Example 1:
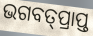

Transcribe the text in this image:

ଭଗବତ୍‌ପ୍ରାପ୍ତ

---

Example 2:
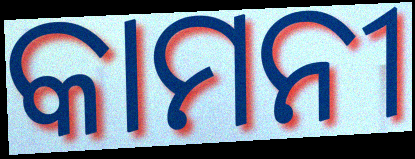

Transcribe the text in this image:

କାମନୀ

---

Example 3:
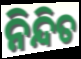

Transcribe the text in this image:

ନିନ୍ଦିତ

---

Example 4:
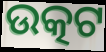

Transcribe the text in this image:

ଉତ୍କଟ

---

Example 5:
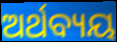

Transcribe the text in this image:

ଅର୍ଥବ୍ୟୟ